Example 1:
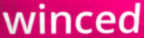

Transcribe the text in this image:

winced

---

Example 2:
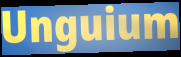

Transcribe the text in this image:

Unguium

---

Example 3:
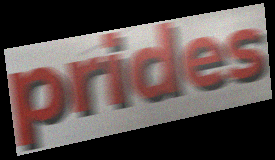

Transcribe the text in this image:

prides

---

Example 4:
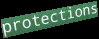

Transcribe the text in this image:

protections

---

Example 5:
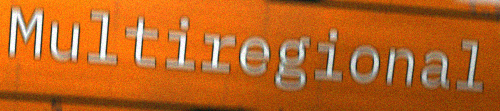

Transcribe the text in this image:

Multiregional